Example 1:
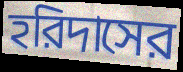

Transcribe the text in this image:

হরিদাসের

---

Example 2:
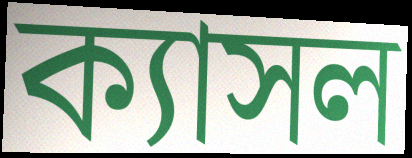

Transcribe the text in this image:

ক্যাসল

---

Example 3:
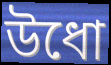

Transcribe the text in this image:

উধো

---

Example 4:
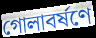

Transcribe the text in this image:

গোলাবর্ষণে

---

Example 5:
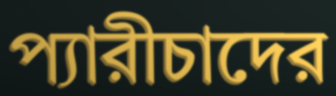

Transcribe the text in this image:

প্যারীচাদের